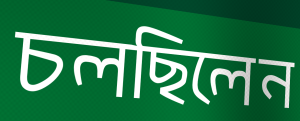
চলছিলেন